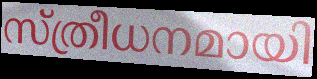
സ്ത്രീധനമായി